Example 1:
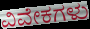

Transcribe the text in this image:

ವಿವೇಕಗಳು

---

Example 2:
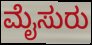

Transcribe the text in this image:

ಮೈಸುರು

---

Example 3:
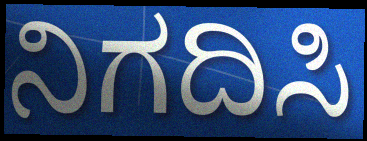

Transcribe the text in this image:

ನಿಗದಿಸಿ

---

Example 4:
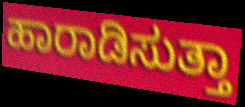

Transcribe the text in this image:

ಹಾರಾಡಿಸುತ್ತಾ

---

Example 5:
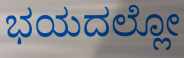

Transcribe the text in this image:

ಭಯದಲ್ಲೋ